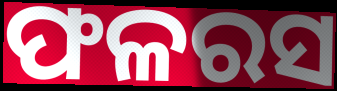
ଫଳରସ